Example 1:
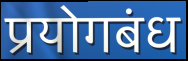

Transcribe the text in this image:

प्रयोगबंध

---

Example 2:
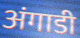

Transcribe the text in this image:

अंगाडी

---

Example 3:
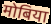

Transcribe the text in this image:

मोबिया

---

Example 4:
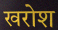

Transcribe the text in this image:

खरोश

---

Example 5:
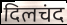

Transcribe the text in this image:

दिलचंद